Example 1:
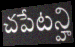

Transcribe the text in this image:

చపేటన్హి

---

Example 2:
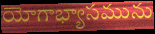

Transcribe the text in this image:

యోగాభ్యాసమును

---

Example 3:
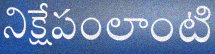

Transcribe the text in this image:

నిక్షేపంలాంటి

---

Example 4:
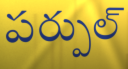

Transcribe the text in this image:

పర్పుల్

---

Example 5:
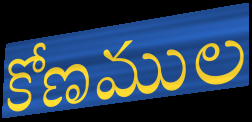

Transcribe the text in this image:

కోణముల